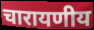
चारायणीय